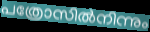
പത്രോസിൽനിന്നും